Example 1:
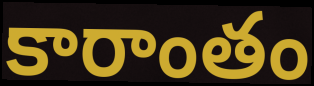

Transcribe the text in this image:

కారాంతం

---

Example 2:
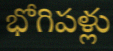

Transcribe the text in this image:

భోగిపళ్లు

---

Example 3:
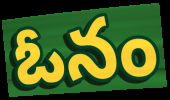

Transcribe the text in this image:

ఓనం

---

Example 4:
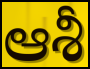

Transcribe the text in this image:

ఆశీ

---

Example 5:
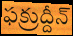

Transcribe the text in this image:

ఫక్రుద్దీన్